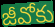
జీవోకు